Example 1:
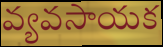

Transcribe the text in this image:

వ్యవసాయక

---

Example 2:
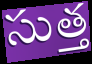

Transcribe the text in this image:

సుత్త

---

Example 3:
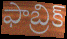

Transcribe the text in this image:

ఫాబ్రిక్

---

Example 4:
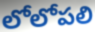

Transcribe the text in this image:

లోలోపలి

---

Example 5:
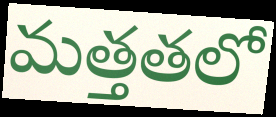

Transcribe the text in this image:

మత్తతలో